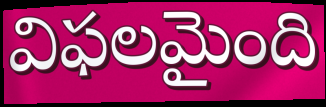
విఫలమైంది